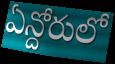
ఏన్దోరులో